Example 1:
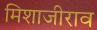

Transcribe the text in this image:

मिशाजीराव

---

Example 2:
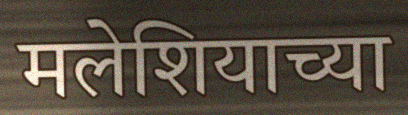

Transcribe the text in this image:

मलेशियाच्या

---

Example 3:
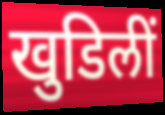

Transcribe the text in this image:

खुडिलीं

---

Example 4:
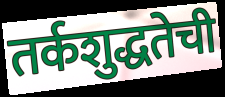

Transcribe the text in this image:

तर्कशुद्धतेची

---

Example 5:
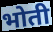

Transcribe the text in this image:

भोती